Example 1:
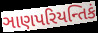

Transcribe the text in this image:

ઞાણપરિયન્તિકં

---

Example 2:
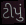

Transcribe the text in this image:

ટીપું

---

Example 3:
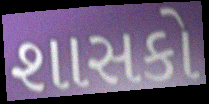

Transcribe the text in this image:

શાસકો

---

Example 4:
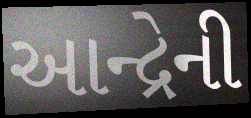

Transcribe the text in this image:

આન્દ્રેની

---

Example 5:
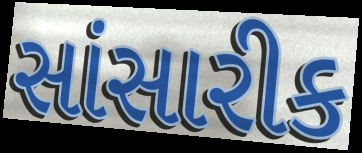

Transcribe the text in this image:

સાંસારીક